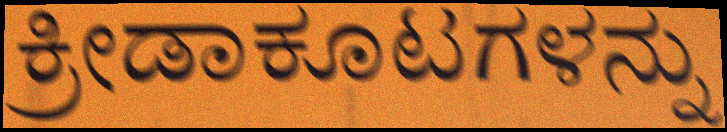
ಕ್ರೀಡಾಕೂಟಗಳನ್ನು